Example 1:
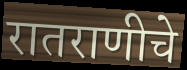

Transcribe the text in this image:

रातराणीचे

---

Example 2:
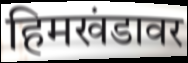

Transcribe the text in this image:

हिमखंडावर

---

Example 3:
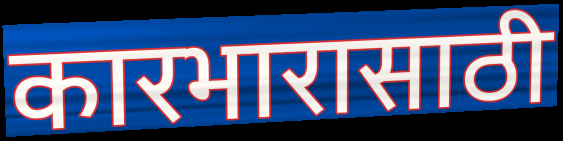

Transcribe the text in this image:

कारभारासाठी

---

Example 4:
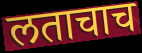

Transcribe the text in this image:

लताचाच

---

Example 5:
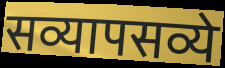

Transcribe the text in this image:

सव्यापसव्ये